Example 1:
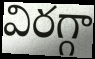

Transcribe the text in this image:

విరగ్గా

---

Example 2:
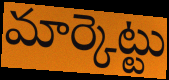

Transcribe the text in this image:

మార్కెట్టు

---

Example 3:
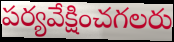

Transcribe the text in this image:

పర్యవేక్షించగలరు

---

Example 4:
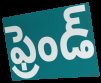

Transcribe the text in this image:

ఫ్రెండ్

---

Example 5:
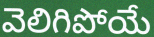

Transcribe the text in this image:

వెలిగిపోయే